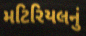
મટિરિયલનું